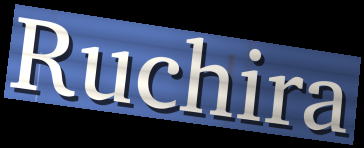
Ruchira